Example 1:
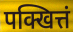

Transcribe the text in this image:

पक्खित्तं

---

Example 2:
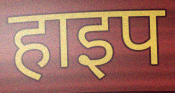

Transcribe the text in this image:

हाइप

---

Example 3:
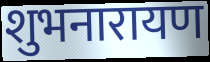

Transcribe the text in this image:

शुभनारायण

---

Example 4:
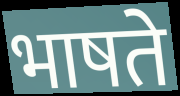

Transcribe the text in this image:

भाषते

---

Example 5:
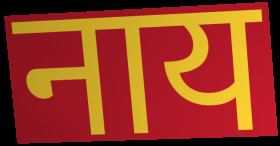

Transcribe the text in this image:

नाय